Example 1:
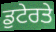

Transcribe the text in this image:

ਡੁਟੇਰਤੇ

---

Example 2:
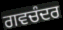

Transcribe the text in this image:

ਗਵਚੰਦਰ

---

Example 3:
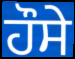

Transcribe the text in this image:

ਹੌਸੇ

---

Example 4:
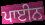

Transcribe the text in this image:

ਪਾਈਨ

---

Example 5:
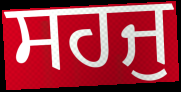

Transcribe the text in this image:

ਸਹਜੁ